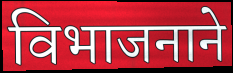
विभाजनाने